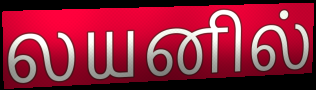
லயனில்